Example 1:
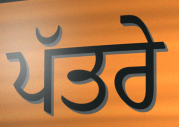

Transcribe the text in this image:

ਪੱਤਰੇ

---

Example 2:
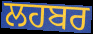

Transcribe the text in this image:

ਲਹਬਰ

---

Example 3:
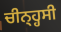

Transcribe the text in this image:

ਚੀਨ੍ਹ੍ਹਸੀ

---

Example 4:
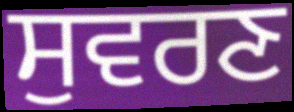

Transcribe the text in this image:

ਸੁਵਰਣ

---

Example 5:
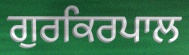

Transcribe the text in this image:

ਗੁਰਕਿਰਪਾਲ